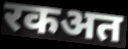
रकअत